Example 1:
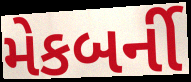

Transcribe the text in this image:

મેકબર્ની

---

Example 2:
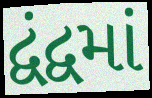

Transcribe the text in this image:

દ્વંદ્વમાં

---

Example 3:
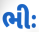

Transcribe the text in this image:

ભીઃ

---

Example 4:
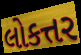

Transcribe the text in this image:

લોકત્તર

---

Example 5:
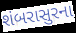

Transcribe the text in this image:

શંબરાસુરના